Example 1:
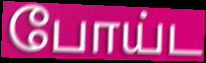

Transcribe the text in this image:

போய்ட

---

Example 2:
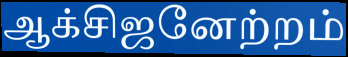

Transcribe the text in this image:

ஆக்சிஜனேற்றம்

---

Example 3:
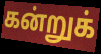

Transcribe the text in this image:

கன்றுக்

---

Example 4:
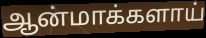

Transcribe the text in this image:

ஆன்மாக்களாய்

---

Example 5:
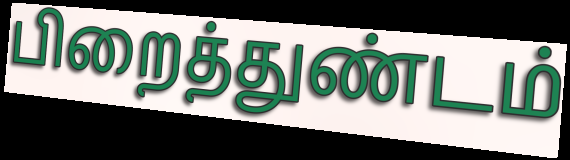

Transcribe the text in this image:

பிறைத்துண்டம்